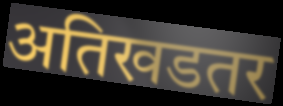
अतिखडतर